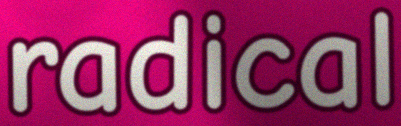
radical